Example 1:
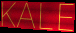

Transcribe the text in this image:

KALE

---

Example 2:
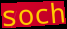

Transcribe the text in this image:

soch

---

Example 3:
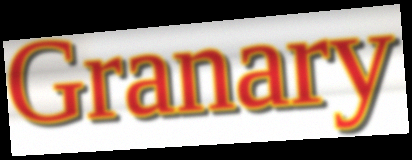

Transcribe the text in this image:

Granary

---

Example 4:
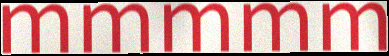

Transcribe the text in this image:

mmmmm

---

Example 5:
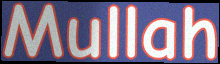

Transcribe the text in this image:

Mullah